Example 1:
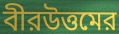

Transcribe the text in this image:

বীরউত্তমের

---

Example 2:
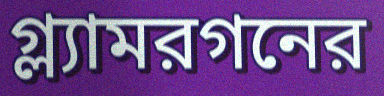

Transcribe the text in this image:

গ্ল্যামরগনের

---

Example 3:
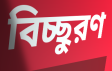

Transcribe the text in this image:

বিচ্ছুরণ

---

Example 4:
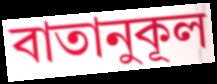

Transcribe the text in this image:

বাতানুকূল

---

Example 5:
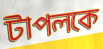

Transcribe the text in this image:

টাপলকে